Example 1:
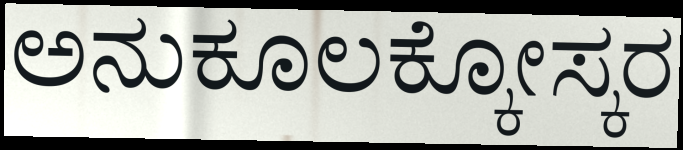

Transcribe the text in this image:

ಅನುಕೂಲಕ್ಕೋಸ್ಕರ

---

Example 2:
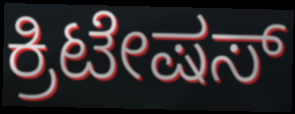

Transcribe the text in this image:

ಕ್ರಿಟೇಷಸ್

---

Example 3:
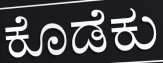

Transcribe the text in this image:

ಕೊಡೆಕು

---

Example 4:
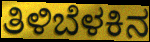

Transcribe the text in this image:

ತಿಳಿಬೆಳಕಿನ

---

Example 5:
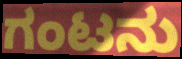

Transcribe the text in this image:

ಗಂಟನು